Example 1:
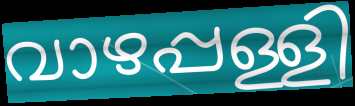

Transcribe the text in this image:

വാഴപ്പള്ളി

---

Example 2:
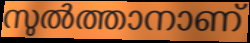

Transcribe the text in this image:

സുൽത്താനാണ്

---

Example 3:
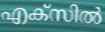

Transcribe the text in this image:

എക്സിൽ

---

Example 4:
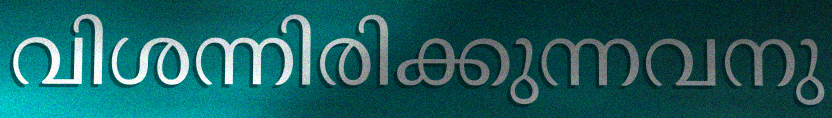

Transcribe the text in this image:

വിശന്നിരിക്കുന്നവനു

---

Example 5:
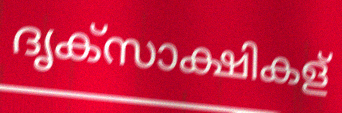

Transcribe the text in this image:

ദൃക്സാക്ഷികള്